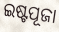
ଇଷ୍ଟପୂଜା